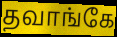
தவாங்கே